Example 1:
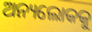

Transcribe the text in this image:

ଅନ୍ୟଲୋକକୁ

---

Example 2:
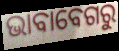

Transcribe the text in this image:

ଭାବାବେଗରୁ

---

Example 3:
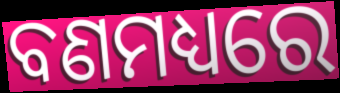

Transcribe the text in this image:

ବଣମଧ୍ଯରେ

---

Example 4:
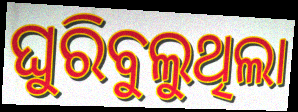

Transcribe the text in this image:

ଘୁରିବୁଲୁଥିଲା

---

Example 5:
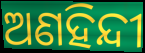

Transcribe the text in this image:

ଅଣହିନ୍ଦୀ